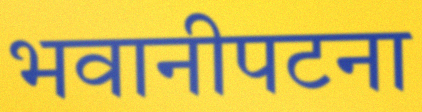
भवानीपटना